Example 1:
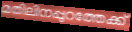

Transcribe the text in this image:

മതിലിനപ്പുറത്തേക്ക്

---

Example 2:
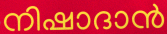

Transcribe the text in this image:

നിഷാദാൻ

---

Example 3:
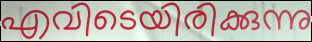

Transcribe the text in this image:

എവിടെയിരിക്കുന്നു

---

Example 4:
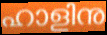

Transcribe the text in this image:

ഹാളിനു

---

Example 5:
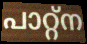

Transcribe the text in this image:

പാറ്റ്ന